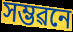
সম্ভৱনে